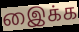
இைக்க